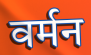
वर्मन